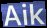
Aik